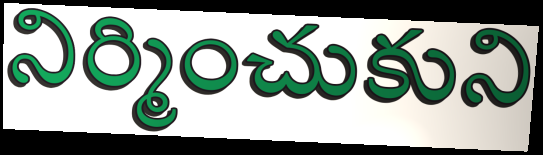
నిర్మించుకుని